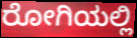
ರೋಗಿಯಲ್ಲಿ